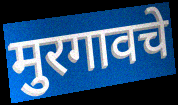
मुरगावचे